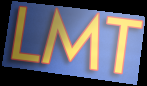
LMT